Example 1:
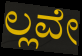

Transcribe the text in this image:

ಲ್ಲವೇ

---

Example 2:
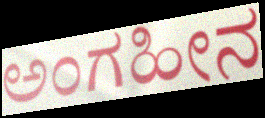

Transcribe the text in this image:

ಅಂಗಹೀನ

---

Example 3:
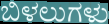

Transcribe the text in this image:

ಬಿಳಲುಗಳು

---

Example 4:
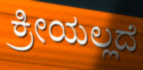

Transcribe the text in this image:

ಕ್ರೀಯಲ್ಲದೆ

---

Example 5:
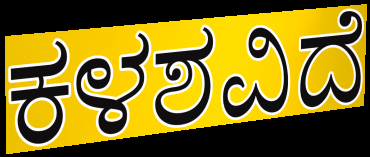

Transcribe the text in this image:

ಕಳಶವಿದೆ